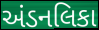
અંડનલિકા